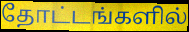
தோட்டங்களில்